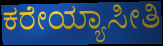
ಕರೇಯ್ಯಾಸೀತಿ